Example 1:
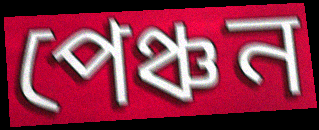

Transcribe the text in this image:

পেঞ্চন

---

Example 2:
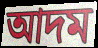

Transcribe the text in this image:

আদম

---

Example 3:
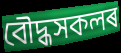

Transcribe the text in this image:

বৌদ্ধসকলৰ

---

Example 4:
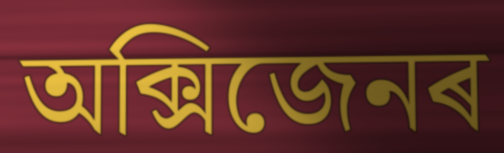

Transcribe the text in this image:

অক্সিজেনৰ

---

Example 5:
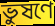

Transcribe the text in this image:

ভুষণে